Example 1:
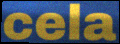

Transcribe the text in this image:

cela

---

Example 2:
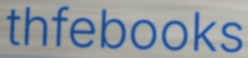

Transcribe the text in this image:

thfebooks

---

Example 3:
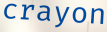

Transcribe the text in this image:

crayon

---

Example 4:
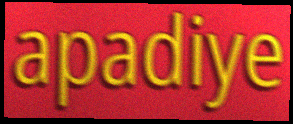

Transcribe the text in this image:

apadiye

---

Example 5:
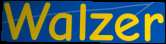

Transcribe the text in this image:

Walzer